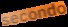
secondo